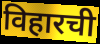
विहारची